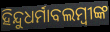
ହିନ୍ଦୁଧର୍ମାବଲମ୍ବୀଙ୍କ